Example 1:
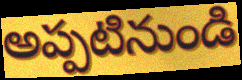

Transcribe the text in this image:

అప్పటినుండి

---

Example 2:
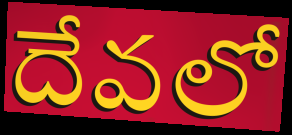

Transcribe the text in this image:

దేవలో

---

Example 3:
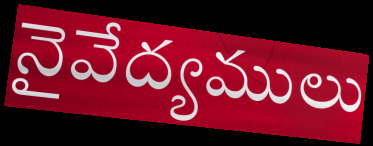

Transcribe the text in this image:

నైవేద్యములు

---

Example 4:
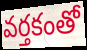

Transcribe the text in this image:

వర్తకంతో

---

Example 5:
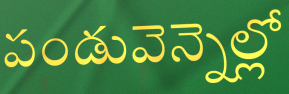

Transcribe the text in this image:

పండువెన్నెల్లో